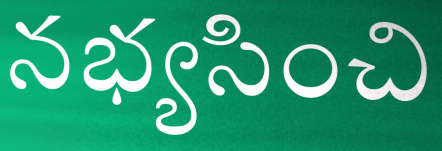
నభ్యసించి